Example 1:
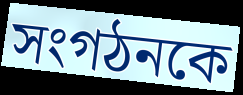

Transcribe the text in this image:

সংগঠনকে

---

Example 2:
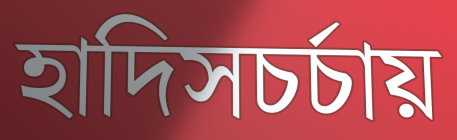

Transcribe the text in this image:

হাদিসচর্চায়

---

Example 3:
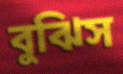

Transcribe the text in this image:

বুঝিস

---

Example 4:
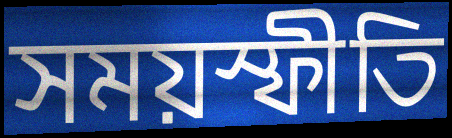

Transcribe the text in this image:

সময়স্ফীতি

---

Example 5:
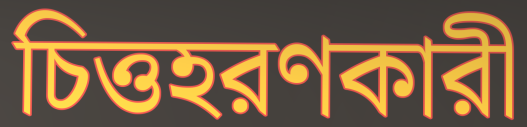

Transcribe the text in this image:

চিত্তহরণকারী